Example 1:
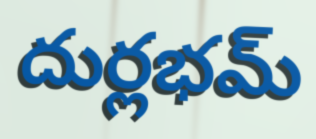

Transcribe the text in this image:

దుర్లభమ్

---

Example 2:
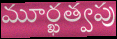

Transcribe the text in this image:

మూర్ఖత్వపు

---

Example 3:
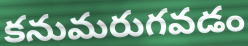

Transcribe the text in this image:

కనుమరుగవడం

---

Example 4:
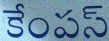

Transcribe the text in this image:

కేంపస్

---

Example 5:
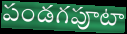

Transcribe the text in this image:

పండగపూటా